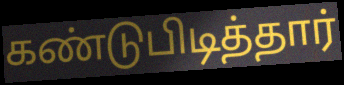
கண்டுபிடித்தார்